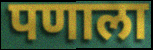
पणाला